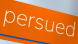
persued